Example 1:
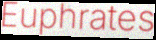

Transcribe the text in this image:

Euphrates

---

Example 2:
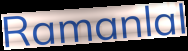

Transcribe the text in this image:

Ramanlal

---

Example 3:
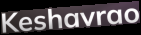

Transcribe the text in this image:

Keshavrao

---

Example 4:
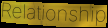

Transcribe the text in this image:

Relationship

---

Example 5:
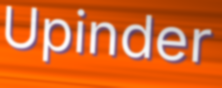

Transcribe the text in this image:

Upinder